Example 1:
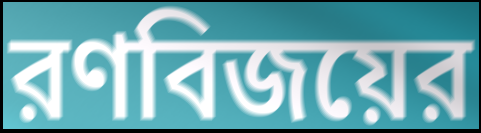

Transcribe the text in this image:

রণবিজয়ের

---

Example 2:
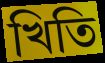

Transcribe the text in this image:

খিতি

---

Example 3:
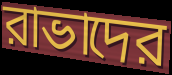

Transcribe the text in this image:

রাভাদের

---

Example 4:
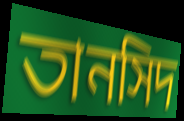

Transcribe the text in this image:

তানসিদ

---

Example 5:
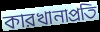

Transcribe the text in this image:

কারখানাপ্রতি